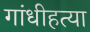
गांधीहत्या